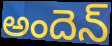
అందెన్